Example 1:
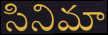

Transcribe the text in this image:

సినిమా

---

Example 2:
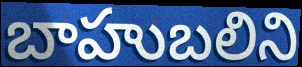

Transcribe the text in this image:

బాహుబలిని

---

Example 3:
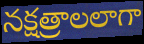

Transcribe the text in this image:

నక్షత్రాలలాగా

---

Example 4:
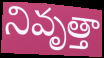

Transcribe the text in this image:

నివృత్తా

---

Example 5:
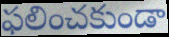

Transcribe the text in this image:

ఫలించకుండా